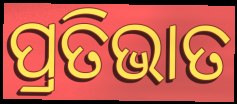
ପ୍ରତିଭାତ